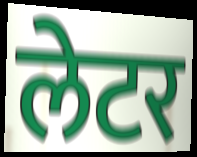
लेटर